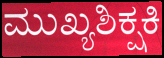
ಮುಖ್ಯಶಿಕ್ಷಕಿ